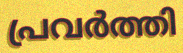
പ്രവർത്തി